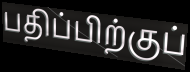
பதிப்பிற்குப்